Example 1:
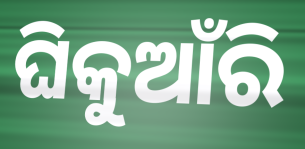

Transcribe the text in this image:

ଘିକୁଆଁରି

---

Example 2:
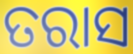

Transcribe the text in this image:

ତରାସ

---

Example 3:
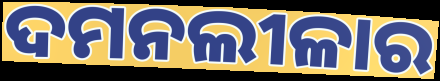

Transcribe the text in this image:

ଦମନଲୀଳାର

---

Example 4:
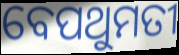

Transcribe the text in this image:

ବେପଥୁମତୀ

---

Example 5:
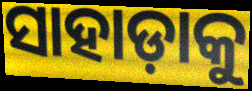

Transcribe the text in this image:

ସାହାଡ଼ାକୁ